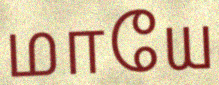
மாயே